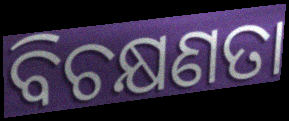
ବିଚକ୍ଷଣତା